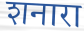
शनारा